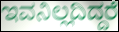
ಇವನಿಲ್ಲದಿದ್ದರೆ